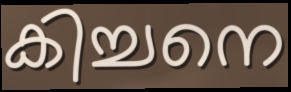
കിച്ചനെ